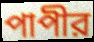
পাপীর